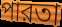
পারতা